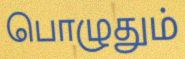
பொழுதும்